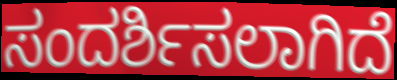
ಸಂದರ್ಶಿಸಲಾಗಿದೆ